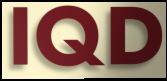
IQD